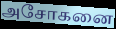
அசோகனை